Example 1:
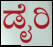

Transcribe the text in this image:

ಡೈರಿ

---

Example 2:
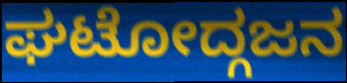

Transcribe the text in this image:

ಘಟೋದ್ಗಜನ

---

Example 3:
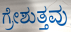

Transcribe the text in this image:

ಗ್ರೇಶುತ್ತವು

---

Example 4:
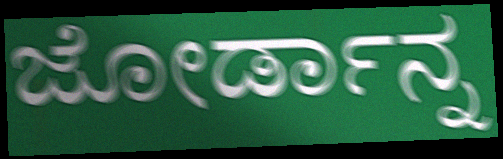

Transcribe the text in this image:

ಜೋರ್ಡಾನ್ನ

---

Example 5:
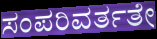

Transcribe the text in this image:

ಸಂಪರಿವರ್ತತೇ